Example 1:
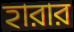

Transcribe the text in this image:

হারার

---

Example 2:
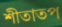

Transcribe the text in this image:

শীতাতপ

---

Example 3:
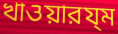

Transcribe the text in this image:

খাওয়ারয্ম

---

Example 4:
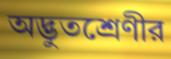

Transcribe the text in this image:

অদ্ভুতশ্রেণীর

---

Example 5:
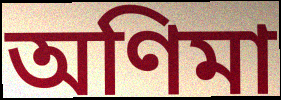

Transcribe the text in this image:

অণিমা